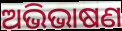
ଅଭିଭାଷଣ